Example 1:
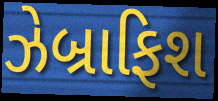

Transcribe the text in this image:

ઝેબ્રાફિશ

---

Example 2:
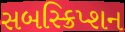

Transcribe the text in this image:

સબસ્ક્રિપ્શન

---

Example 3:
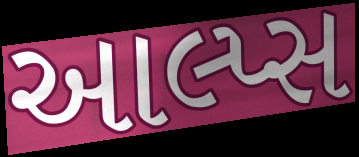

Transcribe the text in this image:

આલ્પ્સ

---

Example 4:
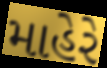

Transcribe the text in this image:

માહેરે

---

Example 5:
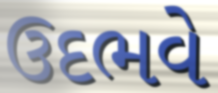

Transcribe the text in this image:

ઉદભવે